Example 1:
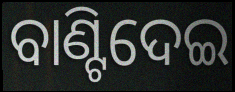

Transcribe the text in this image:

ବାଣ୍ଟିଦେଇ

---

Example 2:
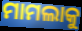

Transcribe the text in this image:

ମାମଲାକୁ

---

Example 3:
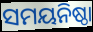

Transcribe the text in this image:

ସମୟନିଷ୍ଠା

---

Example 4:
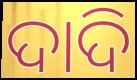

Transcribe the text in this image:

ଦାଦି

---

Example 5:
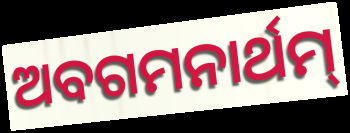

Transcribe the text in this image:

ଅବଗମନାର୍ଥମ୍